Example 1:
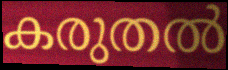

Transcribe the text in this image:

കരുതൽ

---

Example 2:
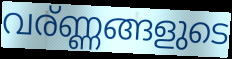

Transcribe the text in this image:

വര്ണ്ണങ്ങളുടെ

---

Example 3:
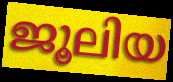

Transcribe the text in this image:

ജൂലിയ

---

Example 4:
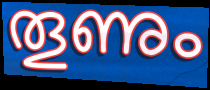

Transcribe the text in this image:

തൂണും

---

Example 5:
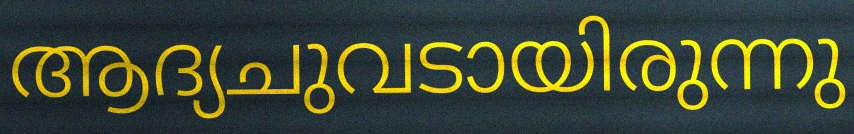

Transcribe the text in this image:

ആദ്യചുവടായിരുന്നു